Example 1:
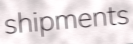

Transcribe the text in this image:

shipments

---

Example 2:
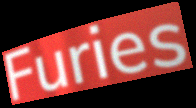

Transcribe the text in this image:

Furies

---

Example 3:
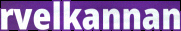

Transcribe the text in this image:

rvelkannan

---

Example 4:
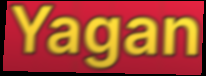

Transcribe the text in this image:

Yagan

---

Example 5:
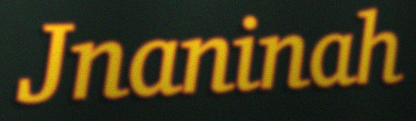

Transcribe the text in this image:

Jnaninah